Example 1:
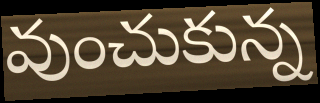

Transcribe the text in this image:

వుంచుకున్న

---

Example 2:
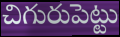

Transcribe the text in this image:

చిగురుపెట్టు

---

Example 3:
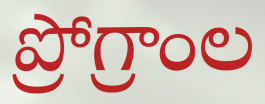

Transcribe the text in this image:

ప్రోగ్రాంల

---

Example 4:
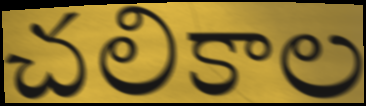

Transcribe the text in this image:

చలికాల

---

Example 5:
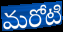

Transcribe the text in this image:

మరోటి